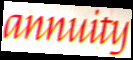
annuity